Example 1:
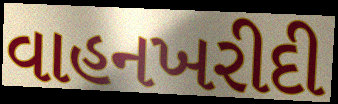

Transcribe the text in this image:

વાહનખરીદી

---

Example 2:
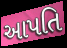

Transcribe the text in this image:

આપતિ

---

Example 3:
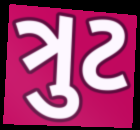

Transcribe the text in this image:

ત્રુટ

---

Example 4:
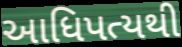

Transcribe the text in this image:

આધિપત્યથી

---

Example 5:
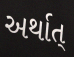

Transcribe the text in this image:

અર્થાત્